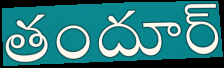
తందూర్